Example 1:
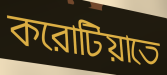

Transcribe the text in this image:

করোটিয়াতে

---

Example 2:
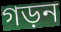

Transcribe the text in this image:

গড়ন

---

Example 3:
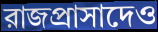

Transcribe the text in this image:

রাজপ্রাসাদেও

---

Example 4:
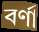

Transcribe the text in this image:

বর্ণা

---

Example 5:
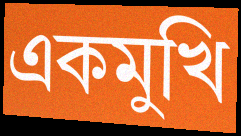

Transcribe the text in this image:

একমুখি